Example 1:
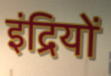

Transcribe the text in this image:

इंद्रियों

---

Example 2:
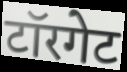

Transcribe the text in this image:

टॉरगेट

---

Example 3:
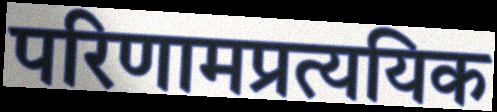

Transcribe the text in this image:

परिणामप्रत्ययिक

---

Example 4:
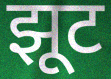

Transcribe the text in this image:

झूट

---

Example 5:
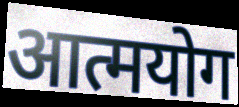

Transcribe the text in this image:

आत्मयोग